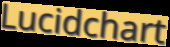
Lucidchart